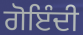
ਗੋਇੰਦੀ